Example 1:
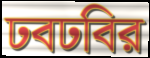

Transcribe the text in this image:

ঢবঢবির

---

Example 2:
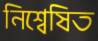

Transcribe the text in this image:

নিশ্বেষিত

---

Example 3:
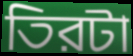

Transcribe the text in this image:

তিরটা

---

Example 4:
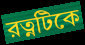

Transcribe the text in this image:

রত্নটিকে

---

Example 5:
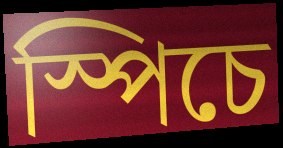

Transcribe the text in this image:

স্পিচে